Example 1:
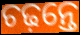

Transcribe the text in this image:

ଚଢ଼ନ୍ତେ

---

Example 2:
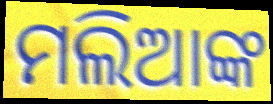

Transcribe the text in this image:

ମଲିଆଙ୍କ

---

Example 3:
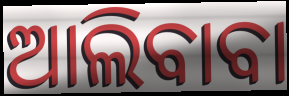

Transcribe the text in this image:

ଆଲିବାବା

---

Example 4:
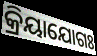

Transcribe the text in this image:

କ୍ରିୟାଯୋଗଃ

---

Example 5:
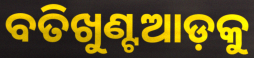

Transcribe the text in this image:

ବତିଖୁଣ୍ଟଆଡ଼କୁ